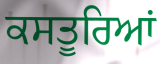
ਕਸਤੂਰਿਆਂ